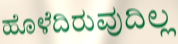
ಹೊಳೆದಿರುವುದಿಲ್ಲ